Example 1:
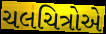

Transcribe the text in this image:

ચલચિત્રોએ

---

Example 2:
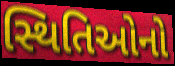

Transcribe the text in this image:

સ્થિતિઓનો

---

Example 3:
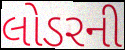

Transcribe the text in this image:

લોડરની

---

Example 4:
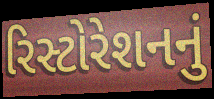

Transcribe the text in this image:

રિસ્ટોરેશનનું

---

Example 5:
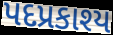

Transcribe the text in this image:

પદપ્રકાશ્ય